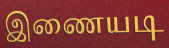
இணையடி